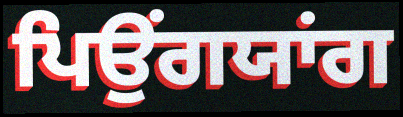
ਪਿਉਂਗਯਾਂਗ